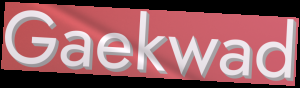
Gaekwad